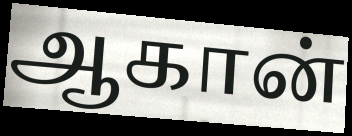
ஆகான்